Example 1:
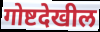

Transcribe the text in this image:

गोष्टदेखील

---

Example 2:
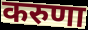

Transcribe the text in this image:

करुणा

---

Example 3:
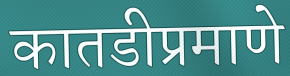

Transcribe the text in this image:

कातडीप्रमाणे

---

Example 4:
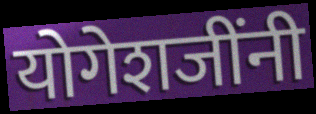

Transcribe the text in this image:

योगेशजींनी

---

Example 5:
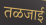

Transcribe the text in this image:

तळजाई